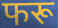
फरू